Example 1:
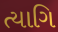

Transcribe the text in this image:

ત્યાગિ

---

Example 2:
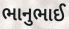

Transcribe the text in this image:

ભાનુભાઈ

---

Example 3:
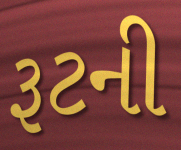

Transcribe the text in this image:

રૂટની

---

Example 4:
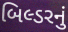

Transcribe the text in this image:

બિલ્ડરનું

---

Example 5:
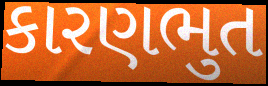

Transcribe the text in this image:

કારણભુત